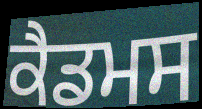
ਕੈਡਮਸ